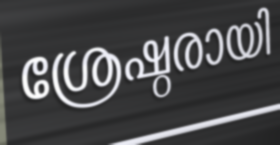
ശ്രേഷ്ഠരായി